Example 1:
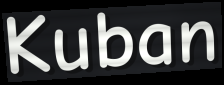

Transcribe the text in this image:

Kuban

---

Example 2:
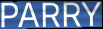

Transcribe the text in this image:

PARRY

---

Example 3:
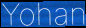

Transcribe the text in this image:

Yohan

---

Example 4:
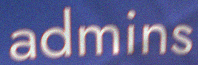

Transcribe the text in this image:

admins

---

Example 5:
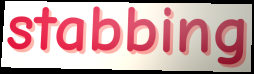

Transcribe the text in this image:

stabbing